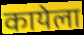
कायेला